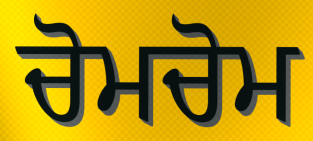
ਚੋਮਚੋਮ